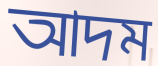
আদম